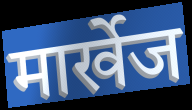
मार्खेज